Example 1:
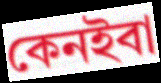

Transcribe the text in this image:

কেনইবা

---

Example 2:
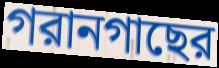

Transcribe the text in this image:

গরানগাছের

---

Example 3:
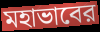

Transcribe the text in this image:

মহাভাবের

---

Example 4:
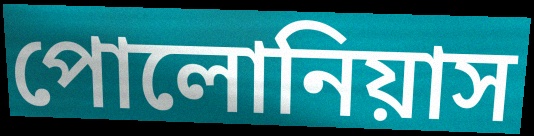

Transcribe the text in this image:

পোলোনিয়াস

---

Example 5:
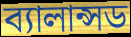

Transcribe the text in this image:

ব্যালান্সড